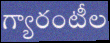
గ్యారంటీల